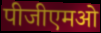
पीजीएमओ